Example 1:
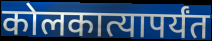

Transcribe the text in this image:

कोलकात्यापर्यंत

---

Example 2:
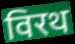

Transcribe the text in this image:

विरथ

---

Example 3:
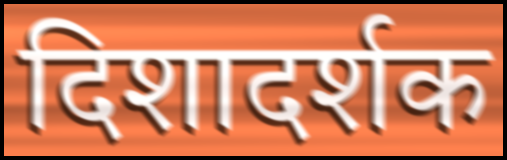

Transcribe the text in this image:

दिशादर्शक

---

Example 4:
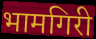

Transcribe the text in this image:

भामगिरी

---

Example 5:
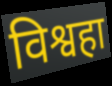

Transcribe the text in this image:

विश्वहा